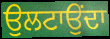
ਉਲਟਾਉਂਦਾ